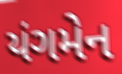
યંગમેન